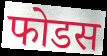
फोडस